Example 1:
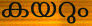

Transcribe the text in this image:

കയറും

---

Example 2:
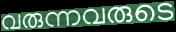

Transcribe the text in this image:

വരുന്നവരുടെ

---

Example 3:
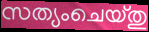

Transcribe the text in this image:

സത്യംചെയ്തു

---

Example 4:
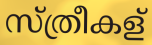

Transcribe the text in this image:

സ്ത്രീകള്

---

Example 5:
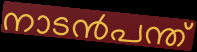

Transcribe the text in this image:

നാടൻപന്ത്